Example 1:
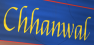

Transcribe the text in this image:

Chhanwal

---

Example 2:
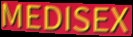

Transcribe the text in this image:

MEDISEX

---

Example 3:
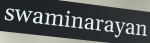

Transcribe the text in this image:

swaminarayan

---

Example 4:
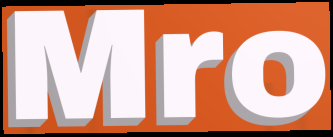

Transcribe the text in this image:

Mro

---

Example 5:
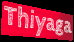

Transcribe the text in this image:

Thiyaga